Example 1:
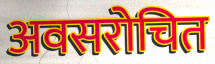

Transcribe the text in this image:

अवसरोचित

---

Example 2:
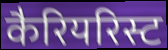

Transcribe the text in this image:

कैरियरिस्ट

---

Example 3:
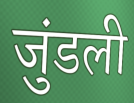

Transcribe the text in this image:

जुंडली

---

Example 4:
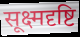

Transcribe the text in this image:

सूक्ष्मदृष्टि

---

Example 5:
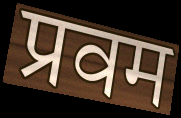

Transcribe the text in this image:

प्रवम